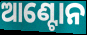
ଆଣ୍ଟୋନ